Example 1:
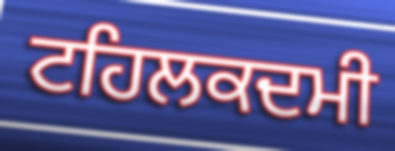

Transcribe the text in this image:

ਟਹਿਲਕਦਮੀ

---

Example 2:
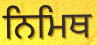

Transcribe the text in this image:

ਨਿਮਿਥ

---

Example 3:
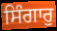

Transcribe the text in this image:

ਸਿੰਗਾਰੁ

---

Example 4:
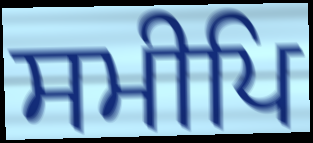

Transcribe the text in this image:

ਸਮੀਪਿ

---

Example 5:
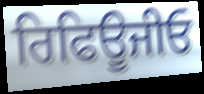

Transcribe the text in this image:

ਰਿਫਿਊਜੀਓ